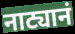
नाट्यानं